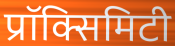
प्रॉक्सिमिटी